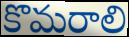
కొమరాలి